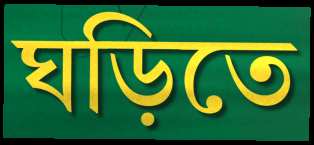
ঘড়িতে